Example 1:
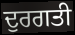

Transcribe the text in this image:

ਦੁਰਗਤੀ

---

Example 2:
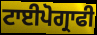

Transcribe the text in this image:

ਟਾਈਪੋਗ੍ਰਾਫੀ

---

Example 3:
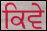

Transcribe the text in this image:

ਕਿਵੇ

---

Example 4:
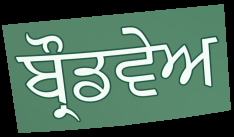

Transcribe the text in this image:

ਬ੍ਰੌਡਵੇਅ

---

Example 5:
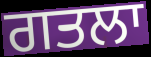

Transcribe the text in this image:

ਗਤਲਾ